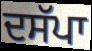
ਦਸੱਪਾ